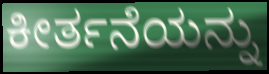
ಕೀರ್ತನೆಯನ್ನು